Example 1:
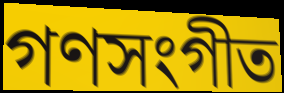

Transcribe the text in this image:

গণসংগীত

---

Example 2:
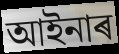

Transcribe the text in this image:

আইনাৰ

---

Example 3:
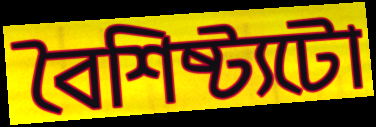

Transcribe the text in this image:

বৈশিষ্ট্যটো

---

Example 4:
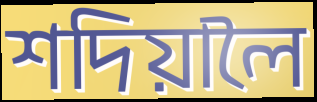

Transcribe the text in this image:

শদিয়ালৈ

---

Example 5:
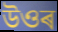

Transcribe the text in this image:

উওৰ